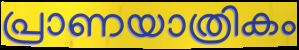
പ്രാണയാത്രികം